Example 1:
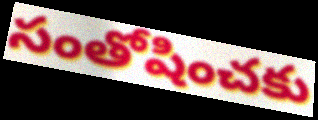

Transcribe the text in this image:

సంతోషించకు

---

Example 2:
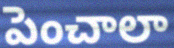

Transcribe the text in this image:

పెంచాలా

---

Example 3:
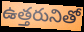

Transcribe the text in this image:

ఉత్తరునితో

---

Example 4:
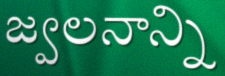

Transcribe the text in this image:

జ్వలనాన్ని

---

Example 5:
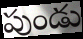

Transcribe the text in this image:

పుండు